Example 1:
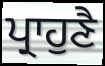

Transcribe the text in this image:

ਪ੍ਰਾਹੁਣੈ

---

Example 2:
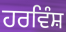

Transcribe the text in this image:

ਹਰਵਿੰਸ਼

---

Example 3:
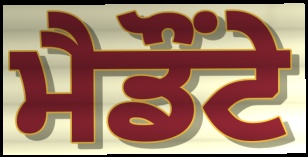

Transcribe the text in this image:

ਮੈਡੌਂਟੇ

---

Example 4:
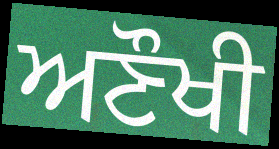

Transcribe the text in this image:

ਅਣੌਖੀ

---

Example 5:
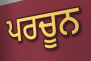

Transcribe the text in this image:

ਪਰਚੂਨ